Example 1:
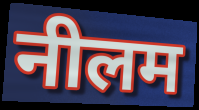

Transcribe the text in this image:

नीलम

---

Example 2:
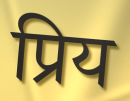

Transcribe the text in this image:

प्रिय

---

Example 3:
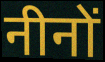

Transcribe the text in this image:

नीनों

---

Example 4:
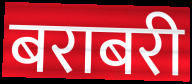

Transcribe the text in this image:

बराबरी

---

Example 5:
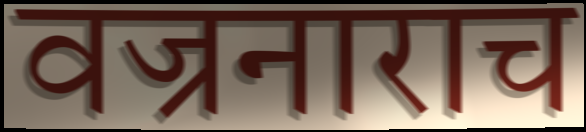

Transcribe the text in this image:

वज्रनाराच